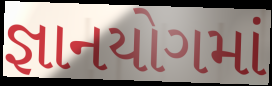
જ્ઞાનયોગમાં